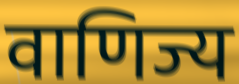
वाणिज्य